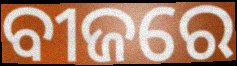
ବୀଜରେ